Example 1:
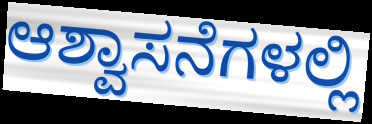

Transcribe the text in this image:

ಆಶ್ವಾಸನೆಗಳಲ್ಲಿ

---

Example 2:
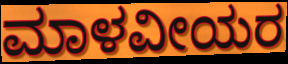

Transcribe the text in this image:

ಮಾಳವೀಯರ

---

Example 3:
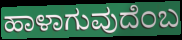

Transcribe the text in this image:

ಹಾಳಾಗುವುದೆಂಬ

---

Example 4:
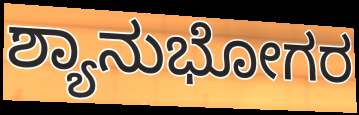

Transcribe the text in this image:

ಶ್ಯಾನುಭೋಗರ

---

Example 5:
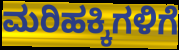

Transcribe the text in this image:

ಮರಿಹಕ್ಕಿಗಳಿಗೆ